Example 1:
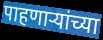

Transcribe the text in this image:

पाहणार्‍यांच्या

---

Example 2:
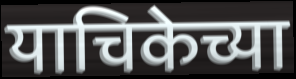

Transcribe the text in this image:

याचिकेच्या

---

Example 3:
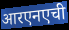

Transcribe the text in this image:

आरएनएची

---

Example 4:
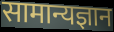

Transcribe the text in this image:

सामान्यज्ञान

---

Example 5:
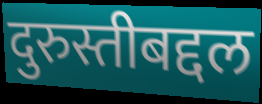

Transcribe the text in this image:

दुरुस्तीबद्दल